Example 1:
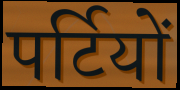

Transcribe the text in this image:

पर्टियों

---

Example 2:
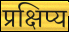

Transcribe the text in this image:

प्रक्षिप्य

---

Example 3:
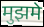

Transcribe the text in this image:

मुझमे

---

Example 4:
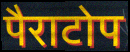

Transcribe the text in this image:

पैराटोप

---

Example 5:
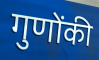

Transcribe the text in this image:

गुणोंकी